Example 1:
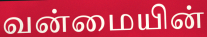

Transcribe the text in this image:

வன்மையின்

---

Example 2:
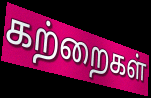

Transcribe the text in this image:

கற்றைகள்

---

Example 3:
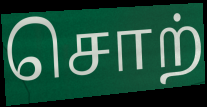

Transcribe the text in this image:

சொற்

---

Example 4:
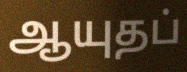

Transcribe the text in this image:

ஆயுதப்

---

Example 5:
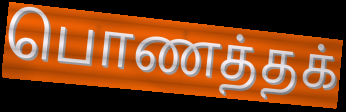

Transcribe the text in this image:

பொணத்தக்